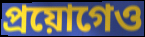
প্রয়োগেও